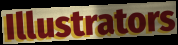
Illustrators